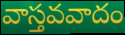
వాస్తవవాదం